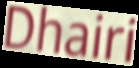
Dhairi